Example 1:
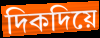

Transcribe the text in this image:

দিকদিয়ে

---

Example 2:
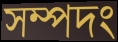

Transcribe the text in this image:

সম্পদং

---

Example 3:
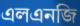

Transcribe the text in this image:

এলএনজি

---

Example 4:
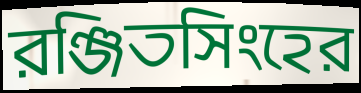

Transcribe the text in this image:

রঞ্জিতসিংহের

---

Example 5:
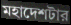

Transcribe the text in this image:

মহাদেশটার